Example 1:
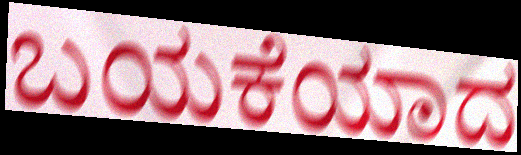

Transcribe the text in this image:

ಬಯಕೆಯಾದ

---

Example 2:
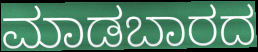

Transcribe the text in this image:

ಮಾಡಬಾರದ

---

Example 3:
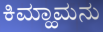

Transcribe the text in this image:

ಕಿಮ್ಹಾಮನು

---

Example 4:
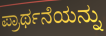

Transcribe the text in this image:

ಪ್ರಾರ್ಥನೆಯನ್ನು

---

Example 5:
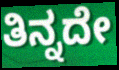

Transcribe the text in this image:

ತಿನ್ನದೇ